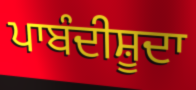
ਪਾਬੰਦੀਸ਼ੂਦਾ